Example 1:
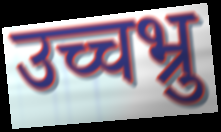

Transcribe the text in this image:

उच्चभ्रु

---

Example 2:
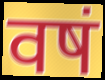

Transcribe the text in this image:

वषं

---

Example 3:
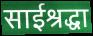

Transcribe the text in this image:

साईश्रद्धा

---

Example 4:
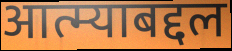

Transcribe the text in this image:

आत्म्याबद्दल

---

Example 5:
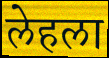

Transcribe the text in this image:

लेहला